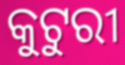
କୁଟୁରୀ